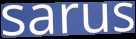
sarus